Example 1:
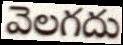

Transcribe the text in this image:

వెలగదు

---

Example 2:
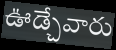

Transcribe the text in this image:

ఊడ్చేవారు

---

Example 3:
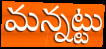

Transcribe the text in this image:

మన్నట్టు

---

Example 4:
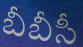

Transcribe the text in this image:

బీబీసీ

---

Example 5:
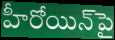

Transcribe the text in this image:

హీరోయిన్‌పై